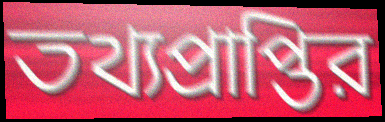
তথ্যপ্রাপ্তির